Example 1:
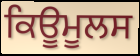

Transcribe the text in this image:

ਕਿਊਮੂਲਸ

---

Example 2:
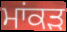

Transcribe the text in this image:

ਮਾਂਕੜ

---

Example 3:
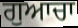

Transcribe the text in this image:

ਗੁਆਚਾ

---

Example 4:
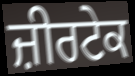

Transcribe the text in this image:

ਜ਼ੀਰਟੇਕ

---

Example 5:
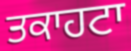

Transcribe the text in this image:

ਤਕਾਹਟਾ